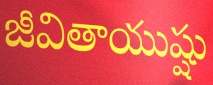
జీవితాయుష్షు